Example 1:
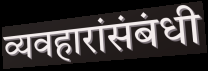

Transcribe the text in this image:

व्यवहारांसंबंधी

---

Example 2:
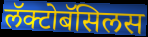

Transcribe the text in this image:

लॅक्टोबॅसिलस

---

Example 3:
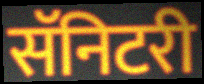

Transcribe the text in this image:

सॅनिटरी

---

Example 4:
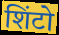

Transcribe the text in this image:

शिंटो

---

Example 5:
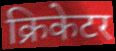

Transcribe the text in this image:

क्रिकेटर